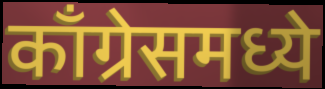
काँग्रेसमध्ये